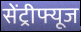
सेंट्रीफ्यूज